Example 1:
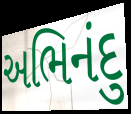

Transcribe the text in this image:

અભિનંદુ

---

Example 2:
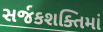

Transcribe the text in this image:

સર્જકશક્તિમાં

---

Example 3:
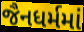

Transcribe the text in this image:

જૈનધર્મમાં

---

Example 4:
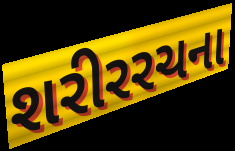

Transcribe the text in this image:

શરીરરચના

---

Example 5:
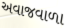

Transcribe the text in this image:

અવાજવાળા